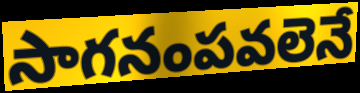
సాగనంపవలెనే